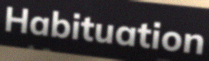
Habituation